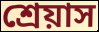
শ্রেয়াস